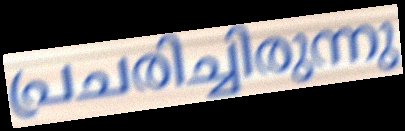
പ്രചരിച്ചിരുന്നു